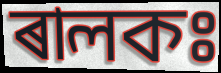
ৰালকঃ